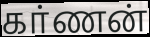
கர்ணன்